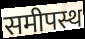
समीपस्थ